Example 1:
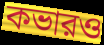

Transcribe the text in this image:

কভারও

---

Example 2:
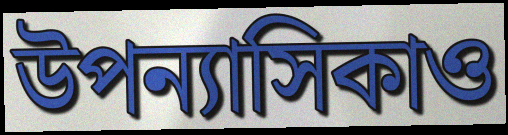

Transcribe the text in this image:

উপন্যাসিকাও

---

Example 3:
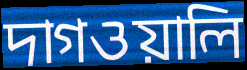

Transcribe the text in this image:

দাগওয়ালি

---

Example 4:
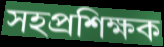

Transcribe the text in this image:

সহপ্রশিক্ষক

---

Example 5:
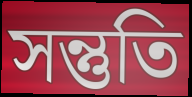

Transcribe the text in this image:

সন্তুতি